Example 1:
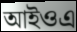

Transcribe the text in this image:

আইওএ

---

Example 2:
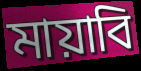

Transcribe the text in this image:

মায়াবি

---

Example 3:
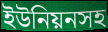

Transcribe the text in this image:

ইউনিয়নসহ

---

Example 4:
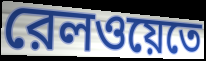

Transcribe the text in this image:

রেলওয়েতে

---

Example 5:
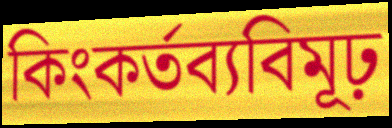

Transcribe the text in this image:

কিংকর্তব্যবিমূঢ়